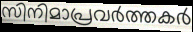
സിനിമാപ്രവർത്തകർ